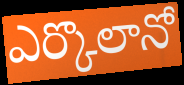
ఎర్కొలానో